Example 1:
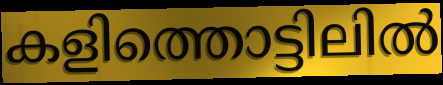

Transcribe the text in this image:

കളിത്തൊട്ടിലിൽ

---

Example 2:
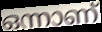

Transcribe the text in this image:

ഒന്നാണ്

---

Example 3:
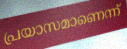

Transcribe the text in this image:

പ്രയാസമാണെന്ന്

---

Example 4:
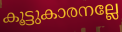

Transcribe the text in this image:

കൂട്ടുകാരനല്ലേ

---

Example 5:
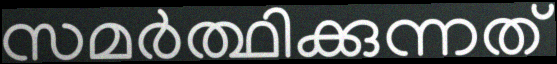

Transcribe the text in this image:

സമർത്ഥിക്കുന്നത്